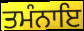
ਤਮੰਨਾਇ